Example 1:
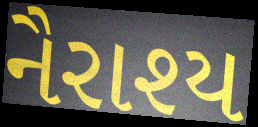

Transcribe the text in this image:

નૈરાશ્ય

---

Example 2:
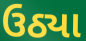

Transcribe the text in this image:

ઉઠ્યા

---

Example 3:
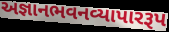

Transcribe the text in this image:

અજ્ઞાનભવનવ્યાપારરૂપ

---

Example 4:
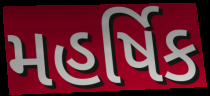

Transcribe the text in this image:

મહર્ષિક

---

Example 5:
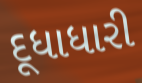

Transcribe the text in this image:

દૂધાધારી